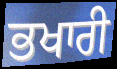
ਭਖਾਰੀ